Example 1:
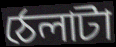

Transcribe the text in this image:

ঠেলাটা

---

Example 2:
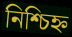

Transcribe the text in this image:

নিশ্চিহ্ন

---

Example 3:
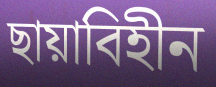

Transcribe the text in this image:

ছায়াবিহীন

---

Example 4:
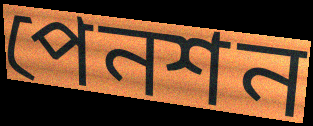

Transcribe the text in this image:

পেনশন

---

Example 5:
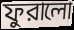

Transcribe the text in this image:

ফুরালো